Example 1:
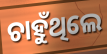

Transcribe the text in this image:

ଚାହୁଁଥିଲେ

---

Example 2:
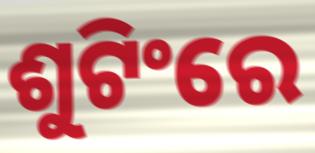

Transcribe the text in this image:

ଶୁଟିଂରେ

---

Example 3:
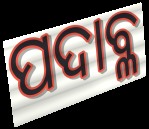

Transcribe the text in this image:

ପଦାବ୍ଳ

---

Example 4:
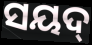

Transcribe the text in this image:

ସୟଦ୍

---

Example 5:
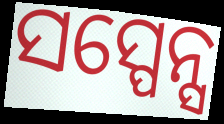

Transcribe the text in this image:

ସସ୍ପେନ୍ସ